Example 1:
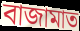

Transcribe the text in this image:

বাজামাত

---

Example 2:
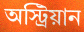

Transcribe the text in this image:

অস্ট্রিয়ান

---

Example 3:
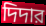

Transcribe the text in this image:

দিদার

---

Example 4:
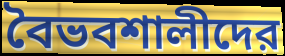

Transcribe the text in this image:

বৈভবশালীদের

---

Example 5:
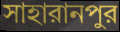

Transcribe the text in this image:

সাহারানপুর